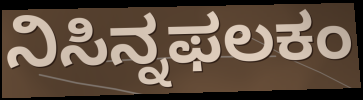
ನಿಸಿನ್ನಫಲಕಂ